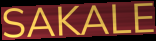
SAKALE